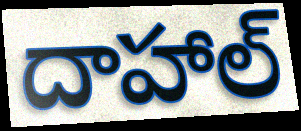
దాహాల్